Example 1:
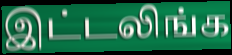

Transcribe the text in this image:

இட்டலிங்க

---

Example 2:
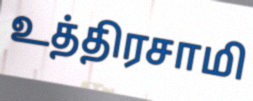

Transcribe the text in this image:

உத்திரசாமி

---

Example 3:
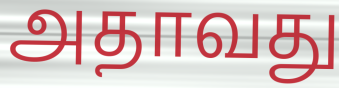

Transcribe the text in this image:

அதாவது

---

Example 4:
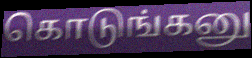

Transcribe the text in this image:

கொடுங்கனு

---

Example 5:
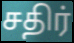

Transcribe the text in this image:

சதிர்